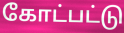
கோட்பட்டு